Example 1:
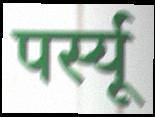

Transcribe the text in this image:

पर्स्यू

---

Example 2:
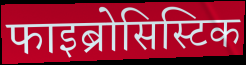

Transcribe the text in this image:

फाइब्रोसिस्टिक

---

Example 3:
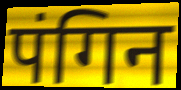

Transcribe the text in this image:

पंगिन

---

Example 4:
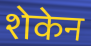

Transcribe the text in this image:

शेकेन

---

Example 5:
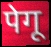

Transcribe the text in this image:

पेगू